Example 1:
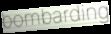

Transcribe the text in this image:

bombarding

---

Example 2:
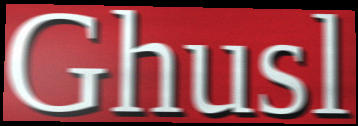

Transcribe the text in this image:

Ghusl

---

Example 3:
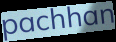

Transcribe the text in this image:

pachhan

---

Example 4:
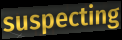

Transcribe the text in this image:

suspecting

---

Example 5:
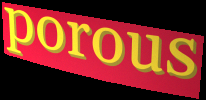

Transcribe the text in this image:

porous